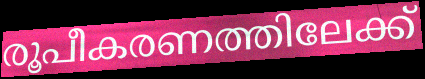
രൂപീകരണത്തിലേക്ക്